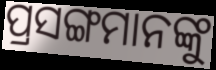
ପ୍ରସଙ୍ଗମାନଙ୍କୁ